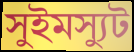
সুইমস্যুট